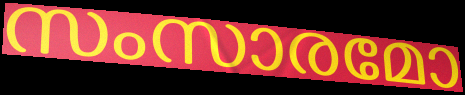
സംസാരമോ